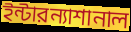
ইন্টারন্যাশানাল